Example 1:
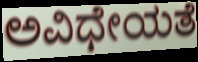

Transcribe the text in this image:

ಅವಿಧೇಯತೆ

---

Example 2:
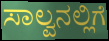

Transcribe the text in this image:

ಸಾಲ್ವನಲ್ಲಿಗೆ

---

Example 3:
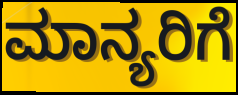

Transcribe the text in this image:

ಮಾನ್ಯರಿಗೆ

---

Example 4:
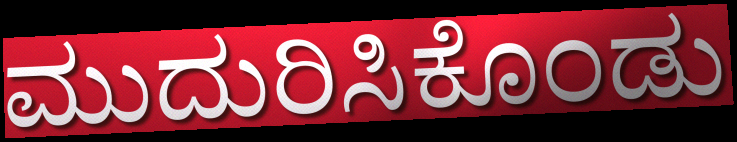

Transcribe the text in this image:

ಮುದುರಿಸಿಕೊಂಡು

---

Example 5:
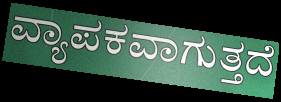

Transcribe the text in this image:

ವ್ಯಾಪಕವಾಗುತ್ತದೆ